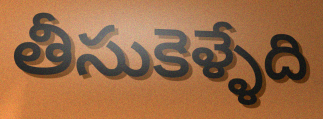
తీసుకెళ్ళేది